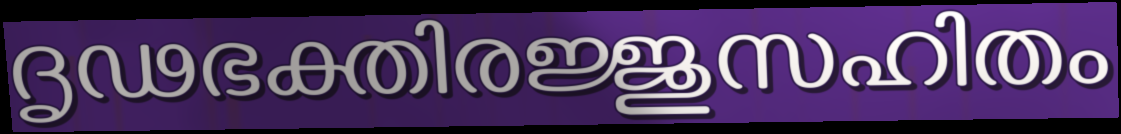
ദൃഢഭക്തിരജ്ജുസഹിതം